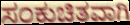
ಸಂಕುಚಿತವಾಗಿ